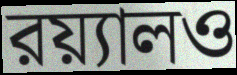
রয়্যালও